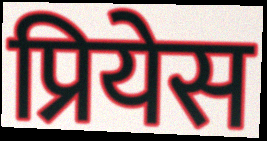
प्रियेस